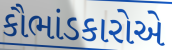
કૌભાંડકારોએ